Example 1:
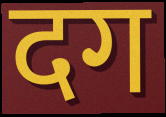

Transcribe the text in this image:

दग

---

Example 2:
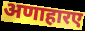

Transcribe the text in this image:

अणाहारए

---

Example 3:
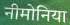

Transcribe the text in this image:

नीमोनिया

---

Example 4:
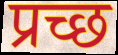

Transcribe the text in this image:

प्रच्छ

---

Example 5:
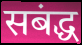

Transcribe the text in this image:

सबंद्ध